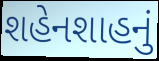
શહેનશાહનું